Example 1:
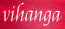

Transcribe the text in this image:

vihanga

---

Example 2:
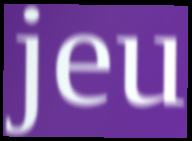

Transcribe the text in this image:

jeu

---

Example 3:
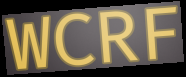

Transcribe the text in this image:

WCRF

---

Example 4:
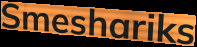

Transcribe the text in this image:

Smeshariks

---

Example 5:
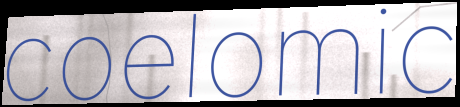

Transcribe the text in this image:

coelomic